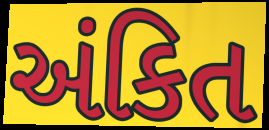
અંકિત